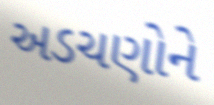
અડચણોને